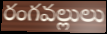
రంగవల్లులు